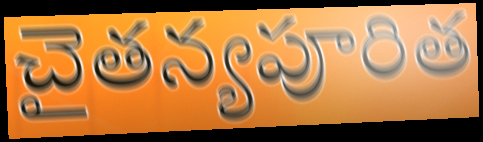
చైతన్యపూరిత